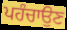
ਪਹੰਚਾਉਣ